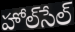
హోల్‌సేల్